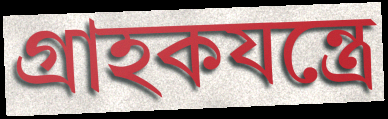
গ্রাহকযন্ত্রে